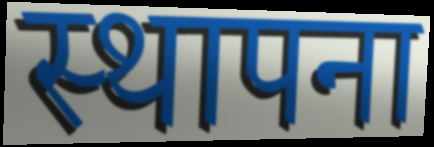
स्थापना